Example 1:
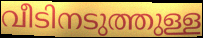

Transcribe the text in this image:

വീടിനടുത്തുള്ള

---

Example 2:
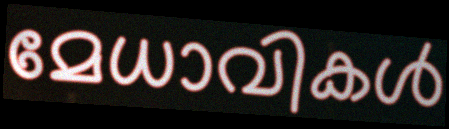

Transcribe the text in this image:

മേധാവികൾ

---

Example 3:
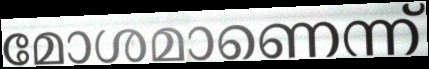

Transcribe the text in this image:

മോശമാണെന്ന്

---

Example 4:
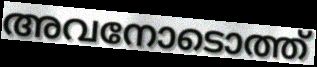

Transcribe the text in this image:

അവനോടൊത്ത്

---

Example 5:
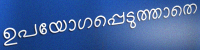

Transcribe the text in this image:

ഉപയോഗപ്പെടുത്താതെ